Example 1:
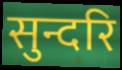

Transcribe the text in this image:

सुन्दरि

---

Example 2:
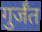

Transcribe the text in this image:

गुर्जंत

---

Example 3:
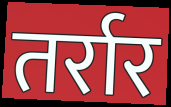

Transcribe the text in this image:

तर्रार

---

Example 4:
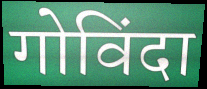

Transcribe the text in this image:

गोविंदा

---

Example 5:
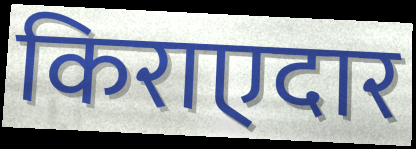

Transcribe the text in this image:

किराएदार